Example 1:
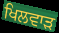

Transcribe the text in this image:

ਖਿਲਵਾੜ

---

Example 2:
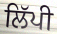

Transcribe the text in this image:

ਲਿੱਪੀ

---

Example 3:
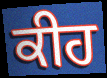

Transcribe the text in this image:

ਕੀਹ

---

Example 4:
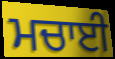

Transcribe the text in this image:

ਮਚਾਈ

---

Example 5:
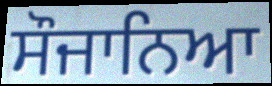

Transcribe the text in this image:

ਸੌਜਾਨਿਆ